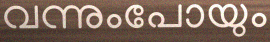
വന്നുംപോയും